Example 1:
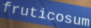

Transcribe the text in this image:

fruticosum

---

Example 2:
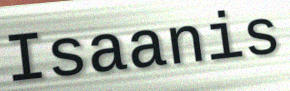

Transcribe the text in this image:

Isaanis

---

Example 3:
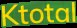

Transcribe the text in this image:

Ktotal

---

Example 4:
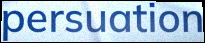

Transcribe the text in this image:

persuation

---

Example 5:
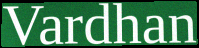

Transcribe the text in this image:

Vardhan